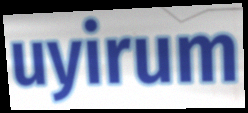
uyirum